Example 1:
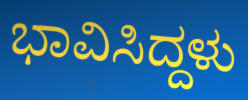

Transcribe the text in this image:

ಭಾವಿಸಿದ್ದಳು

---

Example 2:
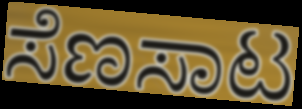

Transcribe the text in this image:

ಸೆಣಸಾಟ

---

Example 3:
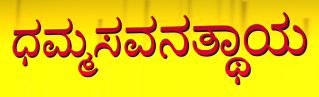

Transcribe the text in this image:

ಧಮ್ಮಸವನತ್ಥಾಯ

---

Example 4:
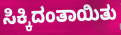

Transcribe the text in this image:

ಸಿಕ್ಕಿದಂತಾಯಿತು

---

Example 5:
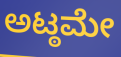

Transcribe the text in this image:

ಅಟ್ಠಮೇ